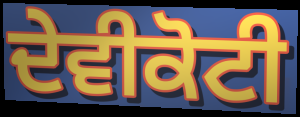
ਦੇਵੀਕੋਟੀ